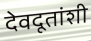
देवदूतांशी